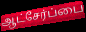
ஆட்சேர்ப்பை